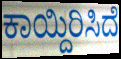
ಕಾಯ್ದಿರಿಸಿದೆ